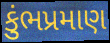
કુંભપ્રમાણ